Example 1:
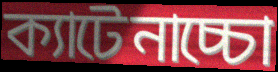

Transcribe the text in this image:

ক্যাটেনাচ্চো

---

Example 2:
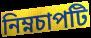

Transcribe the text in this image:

নিম্নচাপটি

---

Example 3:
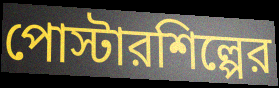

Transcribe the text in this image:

পোস্টারশিল্পের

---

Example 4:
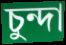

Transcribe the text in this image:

চুন্দা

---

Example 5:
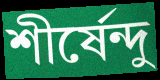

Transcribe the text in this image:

শীর্ষেন্দু